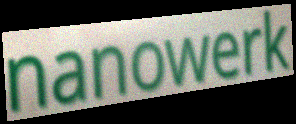
nanowerk